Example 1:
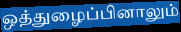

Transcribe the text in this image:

ஒத்துழைப்பினாலும்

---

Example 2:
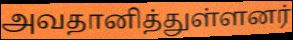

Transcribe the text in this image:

அவதானித்துள்ளனர்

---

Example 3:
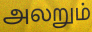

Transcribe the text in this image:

அலறும்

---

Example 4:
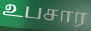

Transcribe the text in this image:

உபசார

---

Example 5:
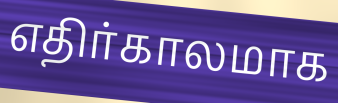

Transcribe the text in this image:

எதிர்காலமாக